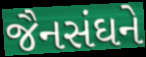
જૈનસંઘને